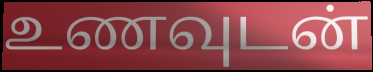
உணவுடன்